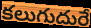
కలుగుదురే